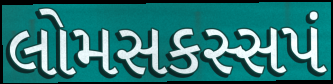
લોમસકસ્સપં